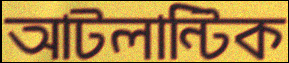
আটলান্টিক